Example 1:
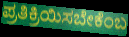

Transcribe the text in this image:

ಪ್ರತಿಕ್ರಿಯಿಸಬೇಕೆಂಬ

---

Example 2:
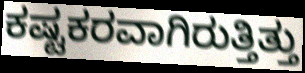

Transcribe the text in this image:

ಕಷ್ಟಕರವಾಗಿರುತ್ತಿತ್ತು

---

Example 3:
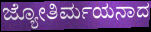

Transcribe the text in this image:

ಜ್ಯೋತಿರ್ಮಯನಾದ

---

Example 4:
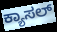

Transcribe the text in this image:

ಕ್ಯಾಸಲ್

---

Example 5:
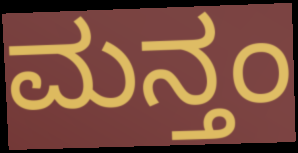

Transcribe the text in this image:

ಮನ್ತಂ